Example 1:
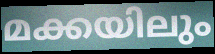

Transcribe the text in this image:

മക്കയിലും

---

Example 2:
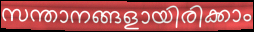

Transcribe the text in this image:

സന്താനങ്ങളായിരിക്കാം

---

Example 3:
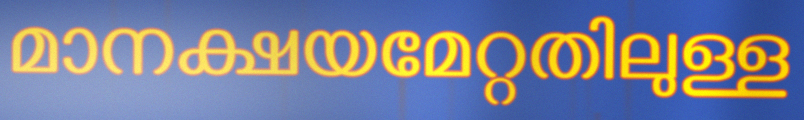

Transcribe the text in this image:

മാനക്ഷയമേറ്റതിലുള്ള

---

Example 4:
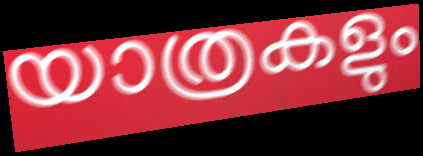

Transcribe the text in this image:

യാത്രകളും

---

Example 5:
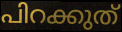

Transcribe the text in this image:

പിറക്കുത്